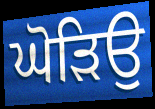
ਘੋੜਿਉ